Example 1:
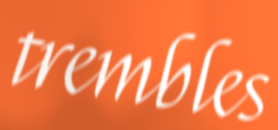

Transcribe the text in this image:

trembles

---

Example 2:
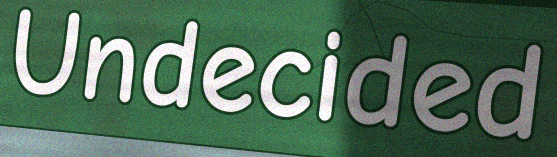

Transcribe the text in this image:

Undecided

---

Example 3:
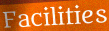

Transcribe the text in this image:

Facilities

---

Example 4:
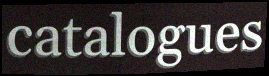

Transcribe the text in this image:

catalogues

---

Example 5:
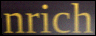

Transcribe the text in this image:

nrich